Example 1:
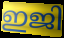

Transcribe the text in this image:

ഇജി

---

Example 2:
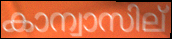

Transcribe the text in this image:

കാന്വാസില്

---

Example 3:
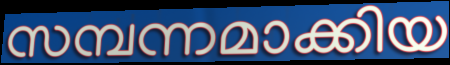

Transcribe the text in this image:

സമ്പന്നമാക്കിയ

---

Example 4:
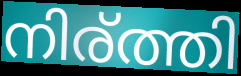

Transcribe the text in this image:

നിര്ത്തി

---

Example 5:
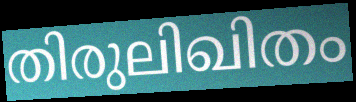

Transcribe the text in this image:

തിരുലിഖിതം